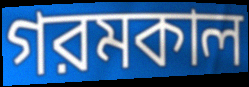
গরমকাল